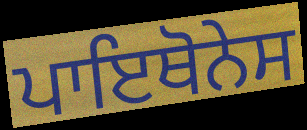
ਪਾਇਥੋਨੇਸ